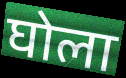
घोला